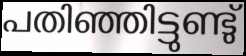
പതിഞ്ഞിട്ടുണ്ടു്